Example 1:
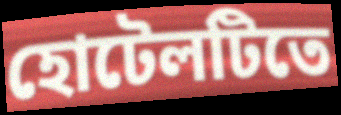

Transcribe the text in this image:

হোটেলটিতে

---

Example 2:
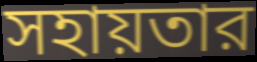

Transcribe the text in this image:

সহায়তার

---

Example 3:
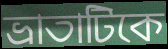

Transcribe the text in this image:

ভ্রাতাটিকে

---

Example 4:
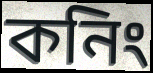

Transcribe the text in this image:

কনিং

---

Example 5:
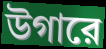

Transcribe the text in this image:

উগারে